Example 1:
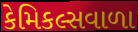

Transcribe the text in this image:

કેમિકલ્સવાળા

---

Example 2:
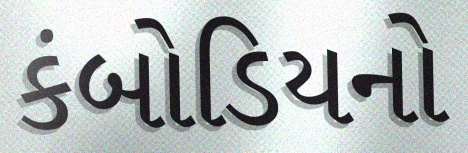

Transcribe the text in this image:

કંબોડિયનો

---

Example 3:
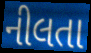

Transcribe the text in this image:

નીલતા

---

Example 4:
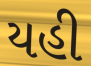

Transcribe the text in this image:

યહી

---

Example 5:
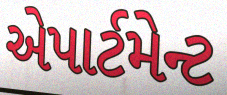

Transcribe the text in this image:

એપાર્ટમેન્ટ